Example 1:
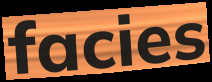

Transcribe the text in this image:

facies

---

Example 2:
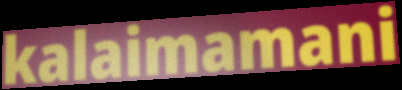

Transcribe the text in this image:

kalaimamani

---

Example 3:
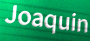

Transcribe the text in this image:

Joaquin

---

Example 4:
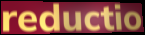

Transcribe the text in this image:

reductio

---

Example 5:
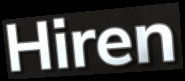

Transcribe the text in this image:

Hiren